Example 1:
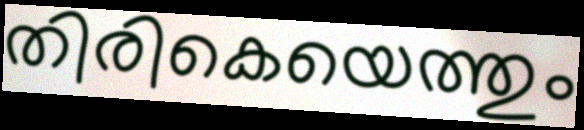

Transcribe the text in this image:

തിരികെയെത്തും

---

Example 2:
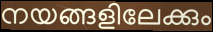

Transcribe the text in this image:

നയങ്ങളിലേക്കും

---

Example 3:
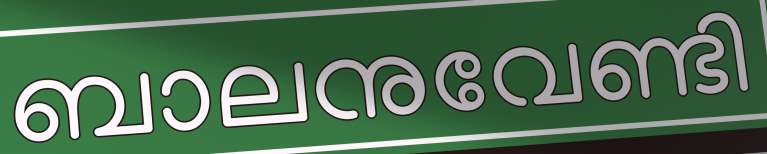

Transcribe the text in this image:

ബാലനുവേണ്ടി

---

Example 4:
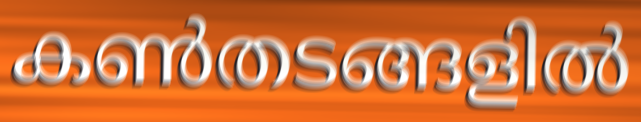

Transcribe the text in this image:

കൺതടങ്ങളിൽ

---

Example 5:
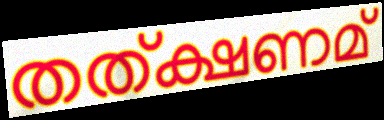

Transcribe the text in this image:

തത്ക്ഷണമ്